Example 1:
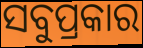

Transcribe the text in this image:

ସବୁପ୍ରକାର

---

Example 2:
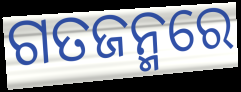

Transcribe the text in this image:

ଗତଜନ୍ମରେ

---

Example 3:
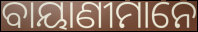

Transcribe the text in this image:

ବାୟାଣୀମାନେ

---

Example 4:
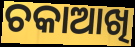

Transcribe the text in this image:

ଚକାଆଖି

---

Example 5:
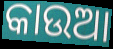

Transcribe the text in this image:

କାଉଆ